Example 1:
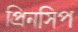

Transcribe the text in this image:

প্রিনসিপ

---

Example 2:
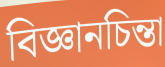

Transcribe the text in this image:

বিজ্ঞানচিন্তা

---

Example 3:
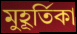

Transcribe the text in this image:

মুহূর্তিকা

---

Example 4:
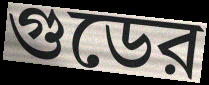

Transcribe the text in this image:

গুডের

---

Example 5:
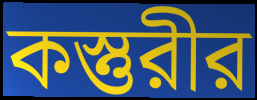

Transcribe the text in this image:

কস্তুরীর